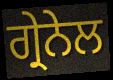
ਗ੍ਰੇਨੇਲ